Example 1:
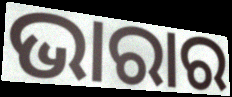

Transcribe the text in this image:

ଭାରାର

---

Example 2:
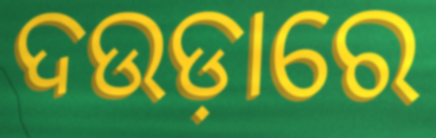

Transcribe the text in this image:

ଦଉଡ଼ାରେ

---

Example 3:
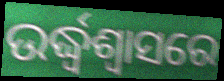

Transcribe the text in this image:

ଉର୍ଦ୍ଧ୍ଵଶ୍ୱାସରେ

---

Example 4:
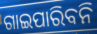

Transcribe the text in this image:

ଗାଇପାରିବନି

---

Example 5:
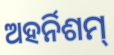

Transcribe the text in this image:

ଅହର୍ନିଶମ୍